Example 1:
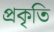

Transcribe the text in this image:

প্রকৃতি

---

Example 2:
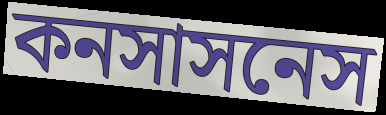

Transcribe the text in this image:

কনসাসনেস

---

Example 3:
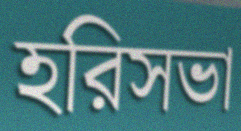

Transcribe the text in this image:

হরিসভা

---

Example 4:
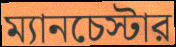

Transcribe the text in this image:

ম্যানচেস্টার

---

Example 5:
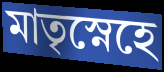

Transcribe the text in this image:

মাতৃস্নেহে